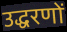
उद्धरणों